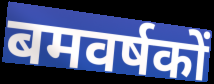
बमवर्षकों